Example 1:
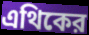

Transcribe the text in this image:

এথিকের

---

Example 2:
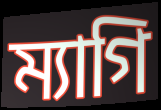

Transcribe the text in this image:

ম্যাগি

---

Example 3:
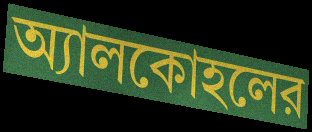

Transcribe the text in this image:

অ্যালকোহলের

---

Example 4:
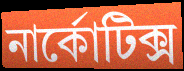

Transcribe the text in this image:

নার্কোটিক্স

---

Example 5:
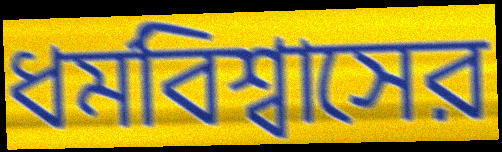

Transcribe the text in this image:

ধর্মবিশ্বাসের